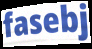
fasebj